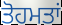
ਤੋਹਮਤਾਂ